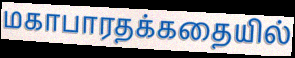
மகாபாரதக்கதையில்